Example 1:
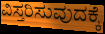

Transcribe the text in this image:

ವಿಸ್ತರಿಸುವುದಕ್ಕೆ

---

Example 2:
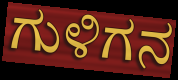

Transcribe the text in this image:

ಗುಳಿಗನ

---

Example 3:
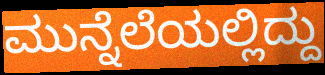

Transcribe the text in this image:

ಮುನ್ನೆಲೆಯಲ್ಲಿದ್ದು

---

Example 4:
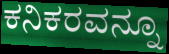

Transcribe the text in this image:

ಕನಿಕರವನ್ನೂ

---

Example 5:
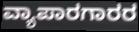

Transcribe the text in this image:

ವ್ಯಾಪಾರಗಾರರ